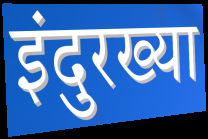
इंदुरख्या